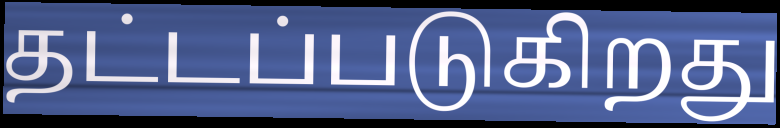
தட்டப்படுகிறது